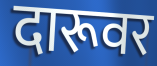
दारूवर